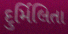
દુર્મિલિતા